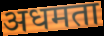
अधमता